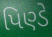
પિણ્ડે